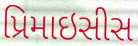
પ્રિમાઇસીસ